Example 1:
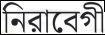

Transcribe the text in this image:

নিরাবেগী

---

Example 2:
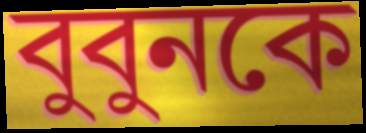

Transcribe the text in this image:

বুবুনকে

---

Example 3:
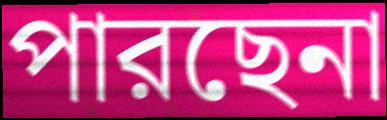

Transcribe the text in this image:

পারছেনা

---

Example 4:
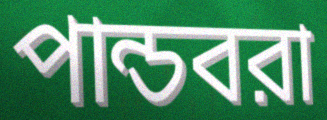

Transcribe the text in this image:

পান্ডবরা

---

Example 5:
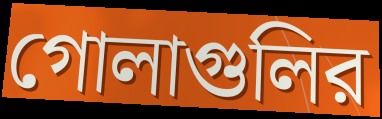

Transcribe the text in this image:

গোলাগুলির